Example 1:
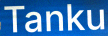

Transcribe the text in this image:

Tanku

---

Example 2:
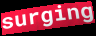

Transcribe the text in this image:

surging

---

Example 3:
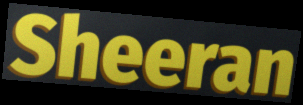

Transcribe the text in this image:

Sheeran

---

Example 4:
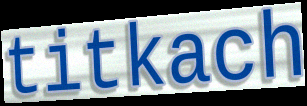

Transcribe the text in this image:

titkach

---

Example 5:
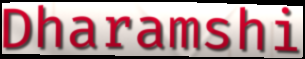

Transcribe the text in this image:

Dharamshi